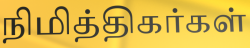
நிமித்திகர்கள்